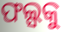
ଫଲ୍ସକୁ